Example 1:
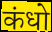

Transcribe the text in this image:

कंधो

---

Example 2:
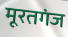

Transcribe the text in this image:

मूरतगंज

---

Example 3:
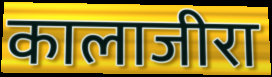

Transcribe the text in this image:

कालाजीरा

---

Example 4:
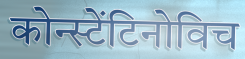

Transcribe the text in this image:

कोन्स्टेंटिनोविच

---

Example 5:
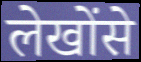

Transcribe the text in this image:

लेखोंसे